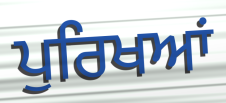
ਪੁਰਿਖਆਂ